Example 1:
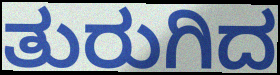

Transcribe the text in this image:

ತುರುಗಿದ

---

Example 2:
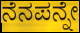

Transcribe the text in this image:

ನೆನಪನ್ನೇ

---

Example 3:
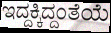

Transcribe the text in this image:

ಇದ್ದಕ್ಕಿದ್ದಂತೆಯೆ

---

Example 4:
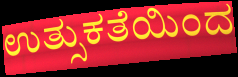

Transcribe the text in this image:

ಉತ್ಸುಕತೆಯಿಂದ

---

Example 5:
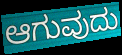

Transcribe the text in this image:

ಆಗುವುದು